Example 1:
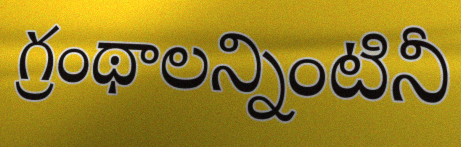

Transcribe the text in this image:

గ్రంథాలన్నింటినీ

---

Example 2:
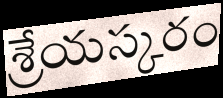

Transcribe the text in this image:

శ్రేయస్కరం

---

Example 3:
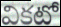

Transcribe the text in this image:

వికటో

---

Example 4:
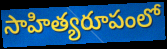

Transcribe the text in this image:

సాహిత్యరూపంలో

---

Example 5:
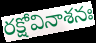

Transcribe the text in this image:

రక్షోవినాశనః